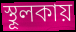
স্থূলকায়